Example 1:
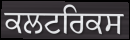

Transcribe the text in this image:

ਕਲਟਰਿਕਸ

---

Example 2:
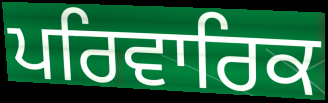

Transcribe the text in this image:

ਪਰਿਵਾਰਿਕ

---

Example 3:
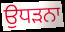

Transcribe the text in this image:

ਉਧੜਨਾ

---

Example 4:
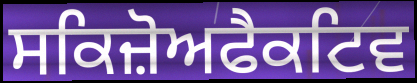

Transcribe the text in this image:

ਸਕਿਜ਼ੋਅਫੈਕਟਿਵ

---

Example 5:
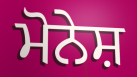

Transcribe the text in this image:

ਮੋਨੇਸ਼